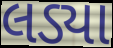
લડ્યા